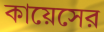
কায়েসের